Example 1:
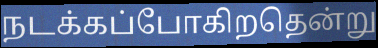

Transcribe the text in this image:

நடக்கப்போகிறதென்று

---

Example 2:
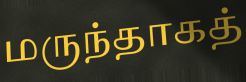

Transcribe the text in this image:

மருந்தாகத்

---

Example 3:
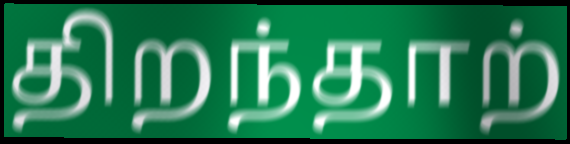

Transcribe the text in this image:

திறந்தாற்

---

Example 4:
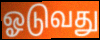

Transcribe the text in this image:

ஓடுவது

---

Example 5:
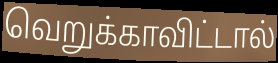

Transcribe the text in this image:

வெறுக்காவிட்டால்